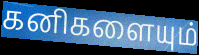
கனிகளையும்